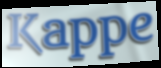
Kappe